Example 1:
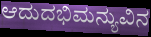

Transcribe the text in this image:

ಆದುದಭಿಮನ್ಯುವಿನ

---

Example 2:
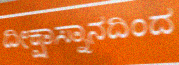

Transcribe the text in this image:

ದೀಕ್ಷಾಸ್ನಾನದಿಂದ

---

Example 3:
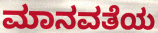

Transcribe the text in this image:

ಮಾನವತೆಯ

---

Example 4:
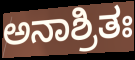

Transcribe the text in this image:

ಅನಾಶ್ರಿತಃ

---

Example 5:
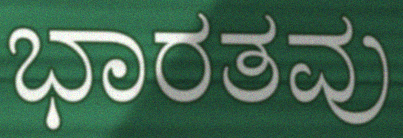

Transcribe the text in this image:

ಭಾರತವು